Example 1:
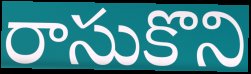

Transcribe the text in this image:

రాసుకొని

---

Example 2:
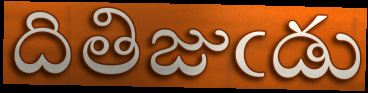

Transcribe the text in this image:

దితిజుఁడు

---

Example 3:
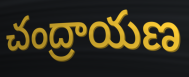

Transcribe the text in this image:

చంద్రాయణ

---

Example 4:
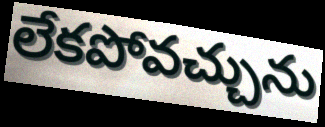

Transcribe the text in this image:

లేకపోవచ్చును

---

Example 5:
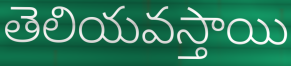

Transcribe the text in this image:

తెలియవస్తాయి